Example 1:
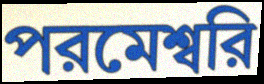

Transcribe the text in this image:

পরমেশ্বরি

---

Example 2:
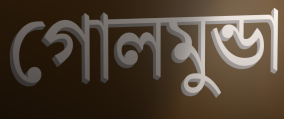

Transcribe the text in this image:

গোলমুন্ডা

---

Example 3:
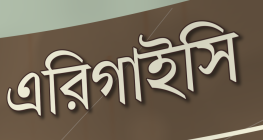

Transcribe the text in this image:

এরিগাইসি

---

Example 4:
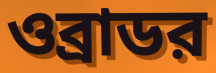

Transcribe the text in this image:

ওব্রাডর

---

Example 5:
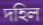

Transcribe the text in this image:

দহিল